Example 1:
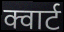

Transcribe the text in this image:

क्वार्ट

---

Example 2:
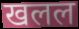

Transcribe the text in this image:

खलल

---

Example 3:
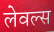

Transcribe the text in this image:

लेवल्स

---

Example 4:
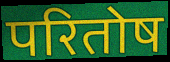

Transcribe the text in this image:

परितोष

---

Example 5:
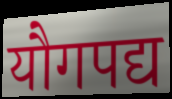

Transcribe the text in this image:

यौगपद्य